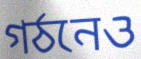
গঠনেও